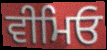
ਵੀਮਿਓ